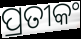
ପ୍ରତୀକଂ